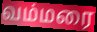
வம்மரை